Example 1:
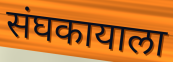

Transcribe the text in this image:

संघकायाला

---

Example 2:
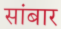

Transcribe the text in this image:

सांबार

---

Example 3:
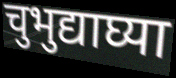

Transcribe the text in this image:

चुभुद्याघ्या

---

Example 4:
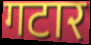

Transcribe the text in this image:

गटार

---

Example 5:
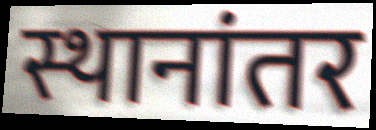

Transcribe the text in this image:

स्थानांतर